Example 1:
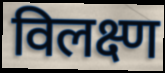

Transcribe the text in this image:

विलक्ष्ण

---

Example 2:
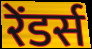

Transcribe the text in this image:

रेंडर्स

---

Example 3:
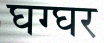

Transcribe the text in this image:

घग्घर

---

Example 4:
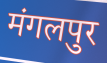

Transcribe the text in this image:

मंगलपुर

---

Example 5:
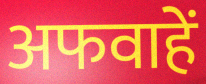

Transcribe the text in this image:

अफवाहें